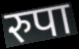
रुपा